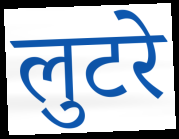
लुटरे